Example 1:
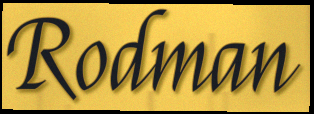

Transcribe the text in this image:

Rodman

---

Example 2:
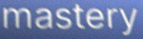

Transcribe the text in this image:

mastery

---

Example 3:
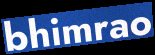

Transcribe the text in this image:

bhimrao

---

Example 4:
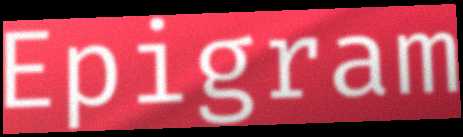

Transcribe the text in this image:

Epigram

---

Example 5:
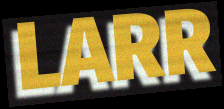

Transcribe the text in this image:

LARR